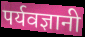
पर्यवज्ञानी